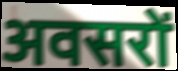
अवसरों